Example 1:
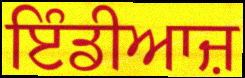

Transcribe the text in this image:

ਇੰਡੀਆਜ਼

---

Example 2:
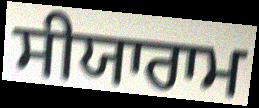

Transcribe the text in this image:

ਸੀਯਾਰਾਮ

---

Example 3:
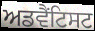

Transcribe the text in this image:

ਅਡਵੈਂਟਿਸਟ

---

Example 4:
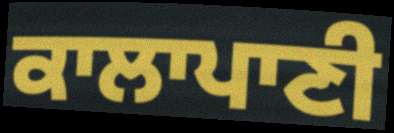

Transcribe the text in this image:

ਕਾਲਾਪਾਣੀ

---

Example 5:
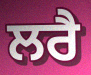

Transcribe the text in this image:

ਲਰੈ